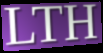
LTH